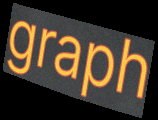
graph